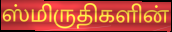
ஸ்மிருதிகளின்